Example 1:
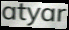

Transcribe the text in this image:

atyar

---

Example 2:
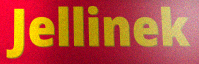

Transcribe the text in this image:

Jellinek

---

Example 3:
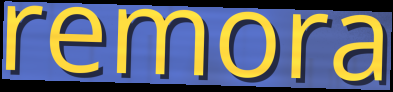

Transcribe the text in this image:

remora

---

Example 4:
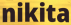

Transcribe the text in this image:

nikita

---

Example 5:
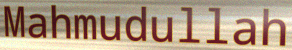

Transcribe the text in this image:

Mahmudullah